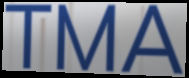
TMA